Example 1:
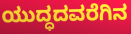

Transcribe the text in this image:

ಯುದ್ಧದವರೆಗಿನ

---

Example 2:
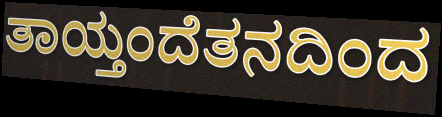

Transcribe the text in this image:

ತಾಯ್ತಂದೆತನದಿಂದ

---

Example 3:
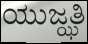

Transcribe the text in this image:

ಯುಜ್ಝತಿ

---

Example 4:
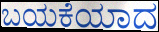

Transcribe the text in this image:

ಬಯಕೆಯಾದ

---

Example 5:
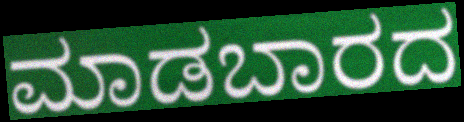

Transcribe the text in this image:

ಮಾಡಬಾರದ